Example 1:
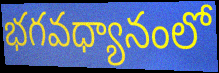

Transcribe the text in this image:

భగవధ్యానంలో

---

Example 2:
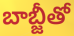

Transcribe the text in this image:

బాబ్జీతో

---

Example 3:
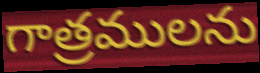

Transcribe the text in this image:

గాత్రములను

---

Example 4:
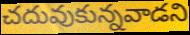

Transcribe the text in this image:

చదువుకున్నవాడని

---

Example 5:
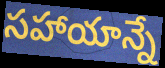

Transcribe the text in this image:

సహాయాన్నే